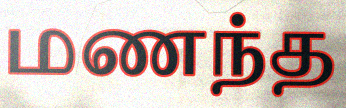
மணந்த